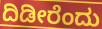
ದಿಡೀರೆಂದು